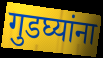
गुडघ्यांना